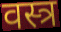
वस्त्र